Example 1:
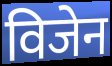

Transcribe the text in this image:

विजेन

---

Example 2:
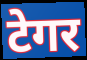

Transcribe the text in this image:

टेगर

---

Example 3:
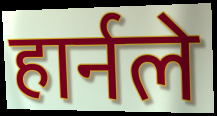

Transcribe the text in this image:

हार्नले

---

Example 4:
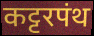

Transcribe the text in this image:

कट्टरपंथ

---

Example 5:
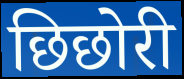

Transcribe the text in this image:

छिछोरी